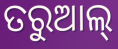
ତରୁଆଲ୍